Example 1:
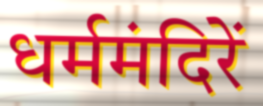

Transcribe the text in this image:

धर्ममंदिरें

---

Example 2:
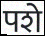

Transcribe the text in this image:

पशे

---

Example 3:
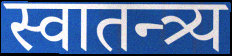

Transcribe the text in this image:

स्वातन्त्र्य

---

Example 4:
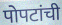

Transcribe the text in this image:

पोपटांची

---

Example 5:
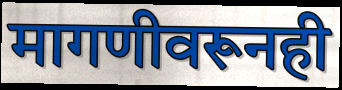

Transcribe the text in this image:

मागणीवरूनही